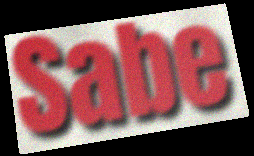
Sabe